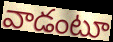
వాడంటూ